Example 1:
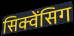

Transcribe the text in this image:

सिक्वेंसिग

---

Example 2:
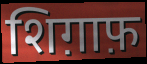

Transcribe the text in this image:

शिग़ाफ़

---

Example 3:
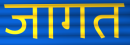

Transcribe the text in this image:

जागत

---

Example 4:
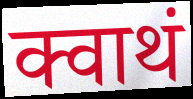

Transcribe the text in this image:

क्वाथं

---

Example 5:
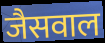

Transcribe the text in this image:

जैसवाल